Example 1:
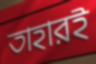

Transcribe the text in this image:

তাহারই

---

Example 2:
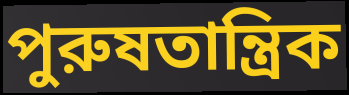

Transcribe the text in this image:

পুরুষতান্ত্রিক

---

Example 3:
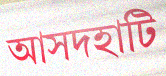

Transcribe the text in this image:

আসদহাটি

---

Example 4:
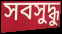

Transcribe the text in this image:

সবসুদ্ধু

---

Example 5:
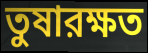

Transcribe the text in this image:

তুষারক্ষত